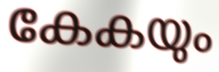
കേകയും